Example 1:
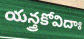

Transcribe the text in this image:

యన్త్రకోవిదాః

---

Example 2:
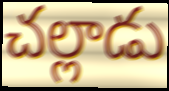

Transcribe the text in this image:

చల్లాడు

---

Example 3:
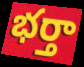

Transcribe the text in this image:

భర్తా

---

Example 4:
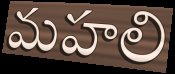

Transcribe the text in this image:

మహలి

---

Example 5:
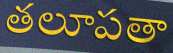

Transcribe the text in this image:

తలూపతా